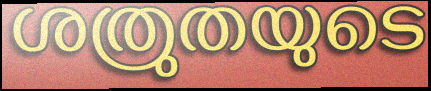
ശത്രുതയുടെ